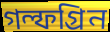
গল্ফগ্রিন